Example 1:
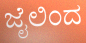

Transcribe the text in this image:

ಜೈಲಿಂದ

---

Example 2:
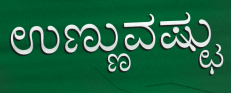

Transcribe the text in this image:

ಉಣ್ಣುವಷ್ಟು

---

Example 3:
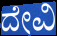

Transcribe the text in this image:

ದೇವಿ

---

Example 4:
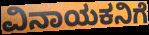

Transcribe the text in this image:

ವಿನಾಯಕನಿಗೆ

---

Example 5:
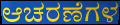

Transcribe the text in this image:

ಆಚರಣೆಗಳ